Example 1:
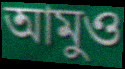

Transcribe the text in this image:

আমুও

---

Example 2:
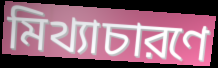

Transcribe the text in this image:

মিথ্যাচারণে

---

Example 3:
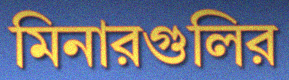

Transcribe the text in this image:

মিনারগুলির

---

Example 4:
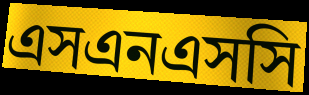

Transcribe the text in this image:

এসএনএসসি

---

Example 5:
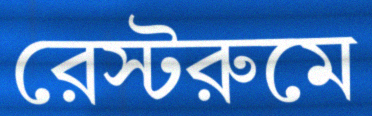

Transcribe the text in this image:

রেস্টরুমে